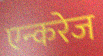
एन्करेज